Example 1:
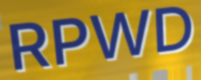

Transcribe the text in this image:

RPWD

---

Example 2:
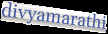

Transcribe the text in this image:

divyamarathi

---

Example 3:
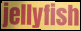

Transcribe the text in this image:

jellyfish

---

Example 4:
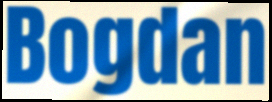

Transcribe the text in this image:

Bogdan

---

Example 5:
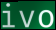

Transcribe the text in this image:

ivo